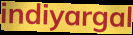
indiyargal